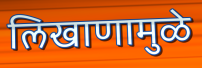
लिखाणामुळे